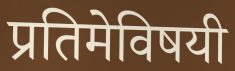
प्रतिमेविषयी